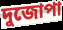
দুজোপা